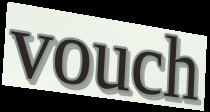
vouch